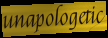
unapologetic